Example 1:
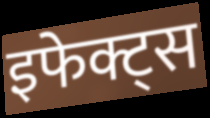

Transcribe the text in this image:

इफेक्ट्स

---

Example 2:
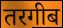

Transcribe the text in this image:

तरगीब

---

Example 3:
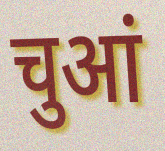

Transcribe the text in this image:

चुआं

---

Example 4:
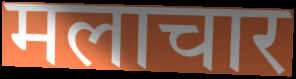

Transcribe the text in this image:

मलाचार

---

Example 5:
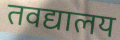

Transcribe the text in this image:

तवद्यालय